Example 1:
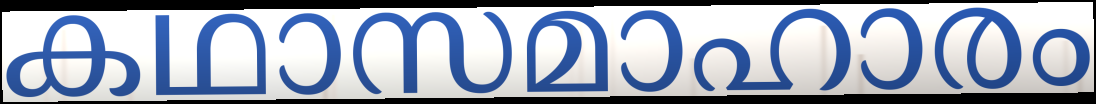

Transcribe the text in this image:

കഥാസമാഹാരം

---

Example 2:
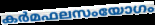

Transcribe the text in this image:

കർമഫലസംയോഗം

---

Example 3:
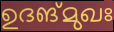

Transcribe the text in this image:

ഉദങ്മുഖഃ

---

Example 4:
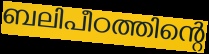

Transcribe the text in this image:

ബലിപീഠത്തിന്റെ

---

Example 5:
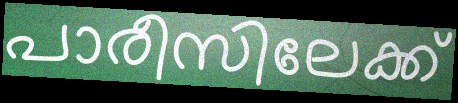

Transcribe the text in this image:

പാരീസിലേക്ക്